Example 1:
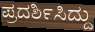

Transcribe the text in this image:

ಪ್ರದರ್ಶಿಸಿದ್ದು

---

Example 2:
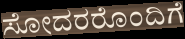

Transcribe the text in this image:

ಸೋದರರೊಂದಿಗೆ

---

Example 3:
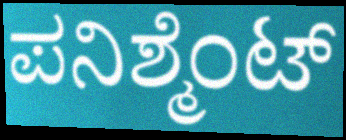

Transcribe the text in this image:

ಪನಿಶ್ಮೆಂಟ್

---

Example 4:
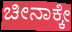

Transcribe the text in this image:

ಚೀನಾಕ್ಕೇ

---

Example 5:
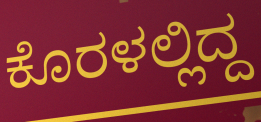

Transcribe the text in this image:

ಕೊರಳಲ್ಲಿದ್ದ